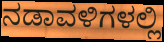
ನಡಾವಳಿಗಳಲ್ಲಿ